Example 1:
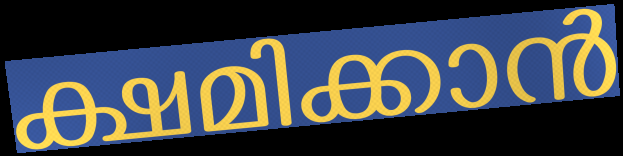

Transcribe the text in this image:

ക്ഷമിക്കാൻ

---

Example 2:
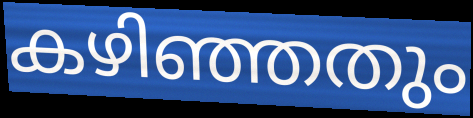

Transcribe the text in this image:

കഴിഞ്ഞതും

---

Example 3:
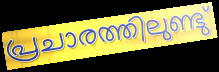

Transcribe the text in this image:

പ്രചാരത്തിലുണ്ടു്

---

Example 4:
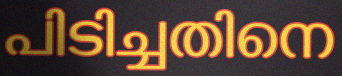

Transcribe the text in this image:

പിടിച്ചതിനെ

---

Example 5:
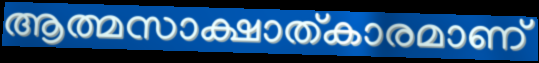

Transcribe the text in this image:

ആത്മസാക്ഷാത്കാരമാണ്